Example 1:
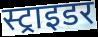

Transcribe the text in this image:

स्ट्राइडर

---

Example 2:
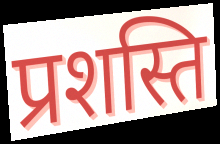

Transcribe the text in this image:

प्रशस्ति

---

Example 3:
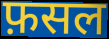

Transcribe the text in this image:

फ़सल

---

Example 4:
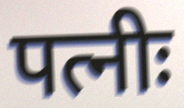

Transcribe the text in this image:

पत्नीः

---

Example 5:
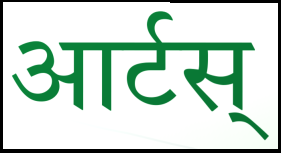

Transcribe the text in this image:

आर्टस्